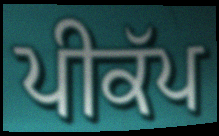
ਪੀਕੱਪ